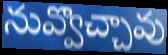
నువ్వొచ్చావు